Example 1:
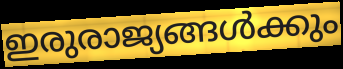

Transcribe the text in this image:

ഇരുരാജ്യങ്ങൾക്കും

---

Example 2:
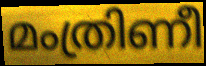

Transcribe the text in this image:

മംത്രിണീ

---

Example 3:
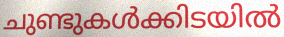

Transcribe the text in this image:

ചുണ്ടുകൾക്കിടയിൽ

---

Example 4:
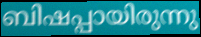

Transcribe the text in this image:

ബിഷപ്പായിരുന്നു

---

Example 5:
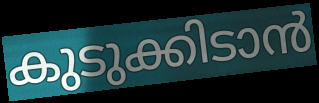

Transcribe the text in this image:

കുടുക്കിടാൻ